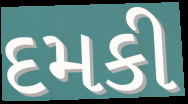
દમકી